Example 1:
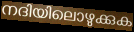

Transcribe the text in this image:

നദിയിലൊഴുക്കുക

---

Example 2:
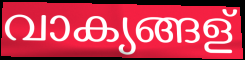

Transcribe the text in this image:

വാക്യങ്ങള്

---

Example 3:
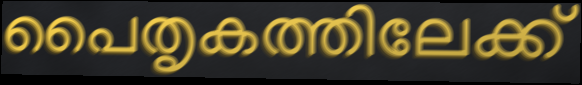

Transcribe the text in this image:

പൈതൃകത്തിലേക്ക്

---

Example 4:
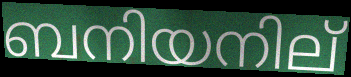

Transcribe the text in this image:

ബനിയനില്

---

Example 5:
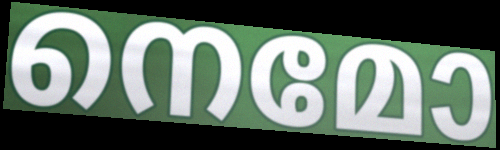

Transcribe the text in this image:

നെമോ